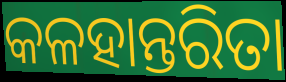
କଳହାନ୍ତରିତା